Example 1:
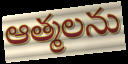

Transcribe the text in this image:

ఆత్మలను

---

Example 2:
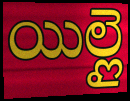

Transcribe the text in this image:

యిల్లై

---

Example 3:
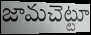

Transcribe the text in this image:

జామచెట్టూ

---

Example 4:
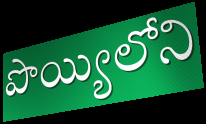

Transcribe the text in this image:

పొయ్యిలోని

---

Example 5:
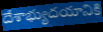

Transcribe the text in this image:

దేశాభ్యుదయానికి